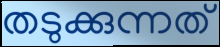
തടുക്കുന്നത്